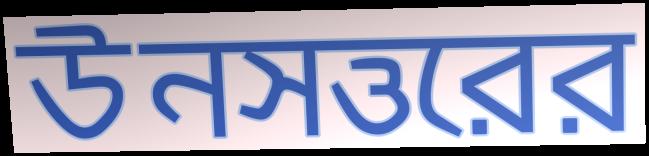
উনসত্তরের